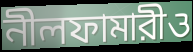
নীলফামারীও